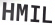
HMIL